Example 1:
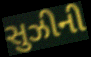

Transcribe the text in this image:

સુઝીની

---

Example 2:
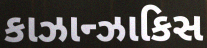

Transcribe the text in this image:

કાઝાન્ઝાકિસ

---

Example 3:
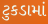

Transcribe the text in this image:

ટુકડામાં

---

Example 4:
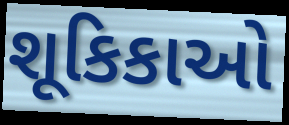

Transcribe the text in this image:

શૂકિકાઓ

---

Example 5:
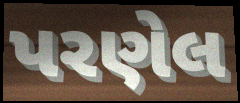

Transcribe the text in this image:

પરણેલ